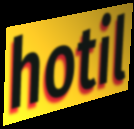
hotil